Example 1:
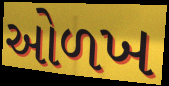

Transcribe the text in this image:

ઓળખ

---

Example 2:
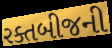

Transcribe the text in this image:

રક્તબીજની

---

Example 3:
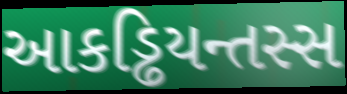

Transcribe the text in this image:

આકડ્ઢિયન્તસ્સ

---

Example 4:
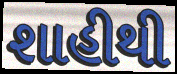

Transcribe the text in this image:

શાહીથી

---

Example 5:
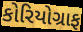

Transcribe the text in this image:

કોરિયોગ્રાફ